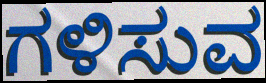
ಗಳಿಸುವ